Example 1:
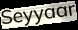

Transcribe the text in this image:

Seyyaar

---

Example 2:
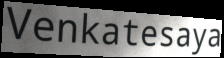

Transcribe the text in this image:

Venkatesaya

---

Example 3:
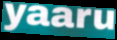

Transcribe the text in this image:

yaaru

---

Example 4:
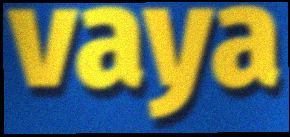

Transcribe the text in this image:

vaya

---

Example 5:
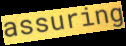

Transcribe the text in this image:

assuring